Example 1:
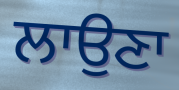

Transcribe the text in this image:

ਲਾਉਣਾ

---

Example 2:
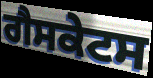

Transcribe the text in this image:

ਗੈਸਕੇਟਸ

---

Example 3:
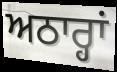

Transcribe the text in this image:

ਅਠਾਰ੍ਹਾਂ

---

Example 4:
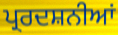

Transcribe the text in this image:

ਪ੍ਰਰਦਸ਼ਨੀਆਂ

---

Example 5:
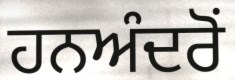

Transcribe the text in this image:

ਹਨਅੰਦਰੋਂ